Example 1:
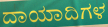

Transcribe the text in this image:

ದಾಯಾದಿಗಳ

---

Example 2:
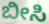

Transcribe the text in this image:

ಬೀಸಿ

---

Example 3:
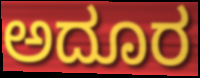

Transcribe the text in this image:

ಅದೂರ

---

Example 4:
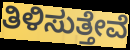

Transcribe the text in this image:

ತಿಳಿಸುತ್ತೇವೆ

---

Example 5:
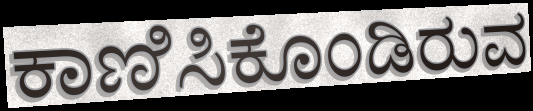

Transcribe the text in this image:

ಕಾಣಿಸಿಕೊಂಡಿರುವ